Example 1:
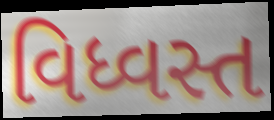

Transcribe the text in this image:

વિધ્વસ્ત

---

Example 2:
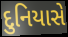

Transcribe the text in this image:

દુનિયાસે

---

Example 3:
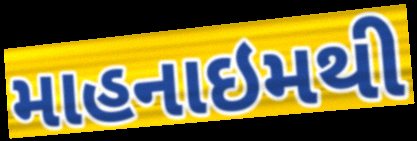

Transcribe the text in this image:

માહનાઇમથી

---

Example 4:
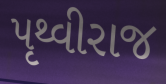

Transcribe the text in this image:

પૃથ્વીરાજ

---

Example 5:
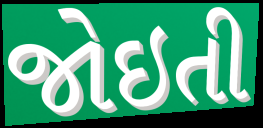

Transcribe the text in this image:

જોઇતી